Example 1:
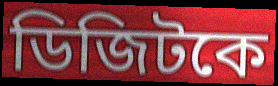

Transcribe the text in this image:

ডিজিটকে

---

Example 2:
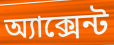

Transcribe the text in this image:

অ্যাক্সেন্ট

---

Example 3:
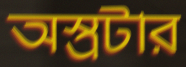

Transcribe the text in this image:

অস্ত্রটার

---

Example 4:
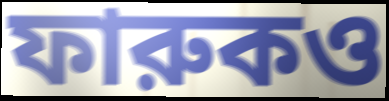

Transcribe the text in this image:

ফারুকও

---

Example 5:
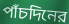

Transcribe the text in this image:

পাঁচদিনের